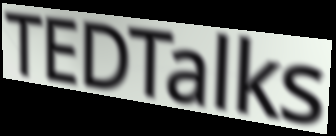
TEDTalks